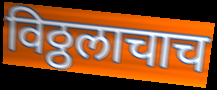
विठ्ठलाचाच